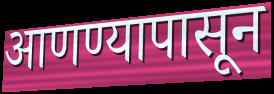
आणण्यापासून